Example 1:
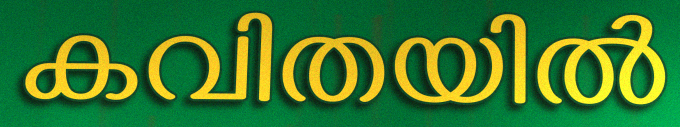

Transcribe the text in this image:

കവിതയിൽ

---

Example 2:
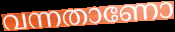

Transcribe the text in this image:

വന്നതാണോ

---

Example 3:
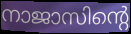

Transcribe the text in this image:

നാജാസിന്റെ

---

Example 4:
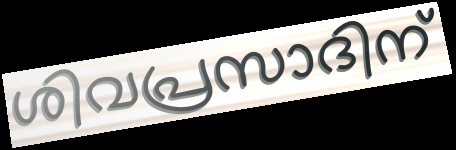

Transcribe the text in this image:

ശിവപ്രസാദിന്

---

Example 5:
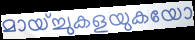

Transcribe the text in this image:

മായ്ച്ചുകളയുകയോ